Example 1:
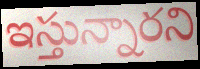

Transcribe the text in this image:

ఇస్తున్నారని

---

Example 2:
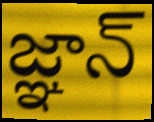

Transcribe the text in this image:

జ్ఞాన్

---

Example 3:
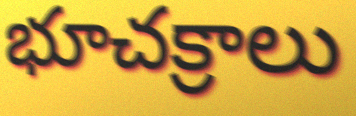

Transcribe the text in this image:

భూచక్రాలు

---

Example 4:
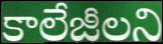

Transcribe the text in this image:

కాలేజీలని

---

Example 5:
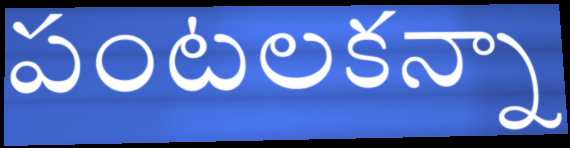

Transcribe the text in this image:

పంటలకన్నా